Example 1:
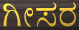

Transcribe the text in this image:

ಗೀಸರ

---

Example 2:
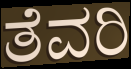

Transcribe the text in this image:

ತೆವರಿ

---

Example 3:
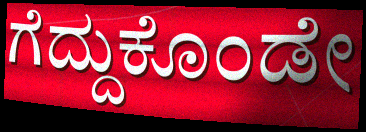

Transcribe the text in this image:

ಗೆದ್ದುಕೊಂಡೇ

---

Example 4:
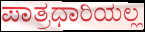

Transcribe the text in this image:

ಪಾತ್ರಧಾರಿಯಲ್ಲ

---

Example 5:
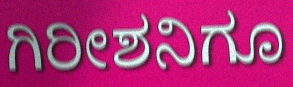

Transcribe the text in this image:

ಗಿರೀಶನಿಗೂ